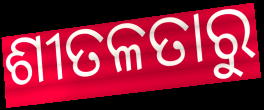
ଶୀତଳତାରୁ